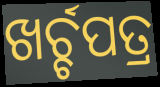
ଖର୍ଚ୍ଚପତ୍ର